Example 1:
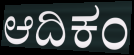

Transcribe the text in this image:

ಆದಿಕಂ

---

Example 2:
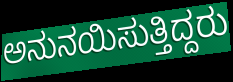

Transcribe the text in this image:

ಅನುನಯಿಸುತ್ತಿದ್ದರು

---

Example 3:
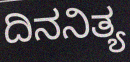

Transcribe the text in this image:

ದಿನನಿತ್ಯ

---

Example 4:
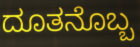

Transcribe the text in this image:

ದೂತನೊಬ್ಬ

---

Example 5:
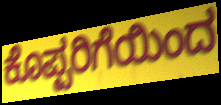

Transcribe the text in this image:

ಕೊಪ್ಪರಿಗೆಯಿಂದ